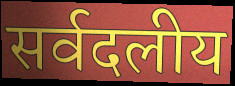
सर्वदलीय